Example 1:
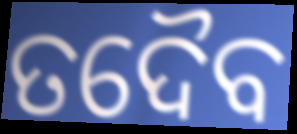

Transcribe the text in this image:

ତଦୈବ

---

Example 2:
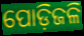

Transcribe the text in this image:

ପୋଡ଼ିଜଳି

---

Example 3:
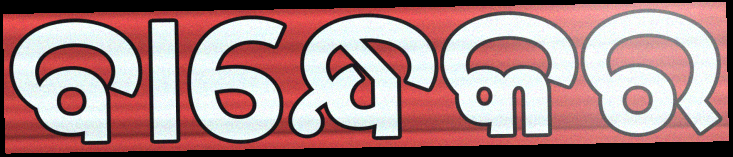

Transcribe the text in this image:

ବାନ୍ଧେକର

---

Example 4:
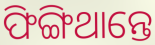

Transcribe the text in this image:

ଫିଙ୍ଗିଥାନ୍ତେ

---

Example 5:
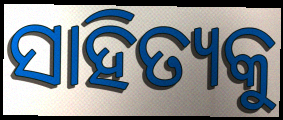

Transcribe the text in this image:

ସାହିତ୍ୟକୁ